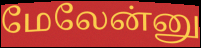
மேலேன்னு